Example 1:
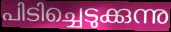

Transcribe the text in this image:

പിടിച്ചെടുക്കുന്നു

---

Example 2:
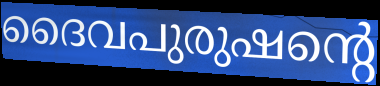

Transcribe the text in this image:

ദൈവപുരുഷന്റെ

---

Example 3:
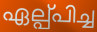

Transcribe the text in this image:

ഏല്പ്പിച്ച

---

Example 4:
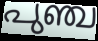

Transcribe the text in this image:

പുഞ്ച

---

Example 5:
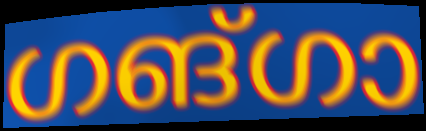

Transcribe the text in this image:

ഗങ്ഗാ